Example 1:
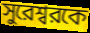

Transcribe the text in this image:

সুরেশ্বরকে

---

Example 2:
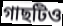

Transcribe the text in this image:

গাছটিও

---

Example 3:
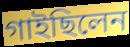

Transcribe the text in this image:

গাইছিলেন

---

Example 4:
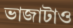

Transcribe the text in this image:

ভাজাটাও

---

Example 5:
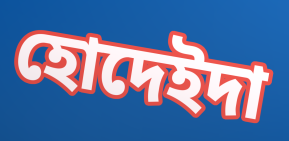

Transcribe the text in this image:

হোদেইদা